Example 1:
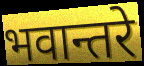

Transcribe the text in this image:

भवान्तरे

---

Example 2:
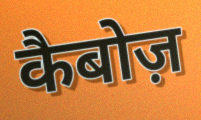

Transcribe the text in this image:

कैबोज़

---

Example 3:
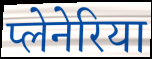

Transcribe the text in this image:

प्लेनेरिया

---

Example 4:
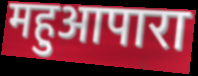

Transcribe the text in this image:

महुआपारा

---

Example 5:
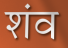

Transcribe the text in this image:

शंव